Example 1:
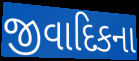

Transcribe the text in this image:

જીવાદિકના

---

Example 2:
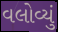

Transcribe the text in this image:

વલોવ્યું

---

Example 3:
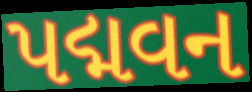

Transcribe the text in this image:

પદ્મવન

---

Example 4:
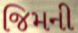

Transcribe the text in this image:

જિમની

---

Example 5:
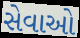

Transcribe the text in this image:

સેવાઓ